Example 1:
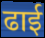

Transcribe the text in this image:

ढाई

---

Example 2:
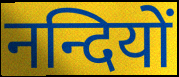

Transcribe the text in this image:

नन्दियों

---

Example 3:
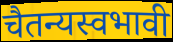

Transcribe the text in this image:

चैतन्यस्वभावी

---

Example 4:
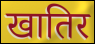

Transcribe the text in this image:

खातिर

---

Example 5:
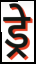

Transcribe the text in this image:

ड्रे